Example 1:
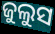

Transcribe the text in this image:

ଜୁଲୁସ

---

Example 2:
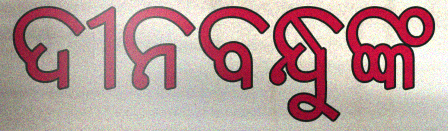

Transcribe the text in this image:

ଦୀନବନ୍ଧୁଙ୍କ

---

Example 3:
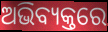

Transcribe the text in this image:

ଅଭିବ୍ୟକ୍ତରେ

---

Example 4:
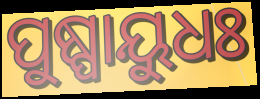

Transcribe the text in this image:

ପୁଷ୍ପାୟୁଧଃ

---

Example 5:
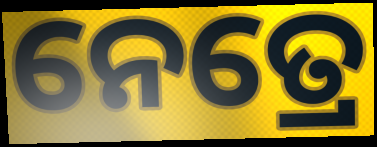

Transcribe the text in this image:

ନେତ୍ରେ